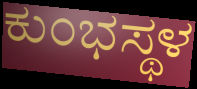
ಕುಂಭಸ್ಥಳ